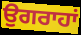
ਉਗਰਾਹਾਂ